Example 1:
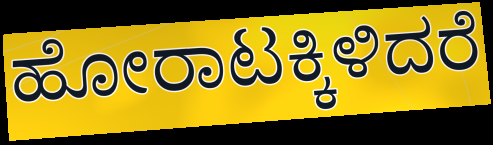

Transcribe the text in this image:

ಹೋರಾಟಕ್ಕಿಳಿದರೆ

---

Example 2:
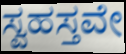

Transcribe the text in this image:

ಸ್ವಹಸ್ತವೇ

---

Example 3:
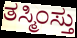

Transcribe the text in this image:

ತಸ್ಮಿಂಸ್ತು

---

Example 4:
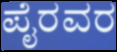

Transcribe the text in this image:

ಪೈರವರ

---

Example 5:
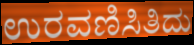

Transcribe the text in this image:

ಉರವಣಿಸಿತಿದು